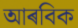
আৰবিক